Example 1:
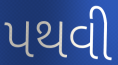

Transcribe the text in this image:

પથવી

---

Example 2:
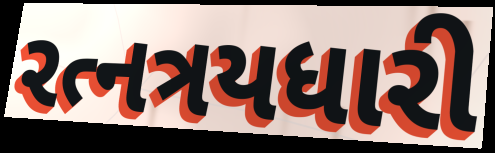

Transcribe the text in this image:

રત્નત્રયધારી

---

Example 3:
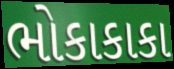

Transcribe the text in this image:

ભોકાકાકા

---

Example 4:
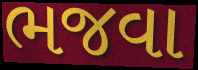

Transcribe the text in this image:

ભજવા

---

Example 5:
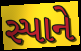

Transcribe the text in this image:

સ્પાને